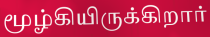
மூழ்கியிருக்கிறார்